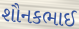
શૌનકભાઈ